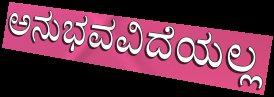
ಅನುಭವವಿದೆಯಲ್ಲ